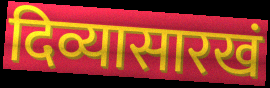
दिव्यासारखं